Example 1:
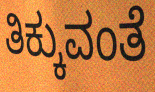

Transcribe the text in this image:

ತಿಕ್ಕುವಂತೆ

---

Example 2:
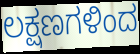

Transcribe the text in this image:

ಲಕ್ಷಣಗಳಿಂದ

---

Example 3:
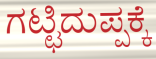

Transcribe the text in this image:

ಗಟ್ಟಿದುಪ್ಪಕ್ಕೆ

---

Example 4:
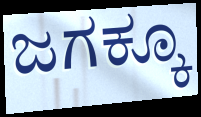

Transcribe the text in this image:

ಜಗಕ್ಕೂ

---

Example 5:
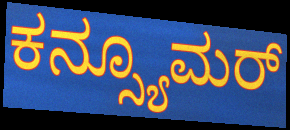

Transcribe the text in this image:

ಕನ್ಸ್ಯೂಮರ್